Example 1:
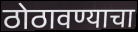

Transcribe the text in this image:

ठोठावण्याचा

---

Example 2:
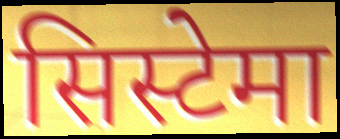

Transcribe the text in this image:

सिस्टेमा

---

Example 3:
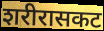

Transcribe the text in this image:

शरीरासकट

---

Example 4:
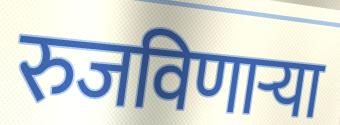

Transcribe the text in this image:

रुजविणाऱ्या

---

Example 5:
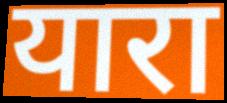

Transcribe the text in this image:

यारा